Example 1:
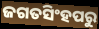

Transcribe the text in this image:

ଜଗତସିଂହପରୁ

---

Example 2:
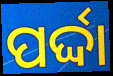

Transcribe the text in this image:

ପର୍ଦ୍ଦା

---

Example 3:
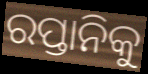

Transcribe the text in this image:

ରପ୍ତାନିକୁ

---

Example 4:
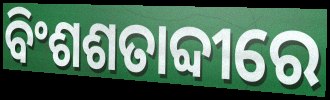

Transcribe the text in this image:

ବିଂଶଶତାବ୍ଦୀରେ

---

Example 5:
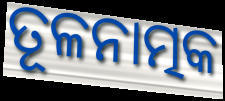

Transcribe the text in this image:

ତୂଳନାତ୍ମକ